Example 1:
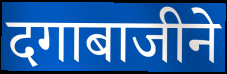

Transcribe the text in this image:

दगाबाजीने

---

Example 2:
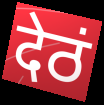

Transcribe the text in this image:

देठं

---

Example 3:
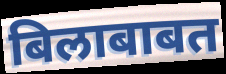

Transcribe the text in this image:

बिलाबाबत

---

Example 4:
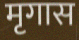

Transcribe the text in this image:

मृगास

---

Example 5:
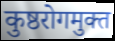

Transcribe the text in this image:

कुष्ठरोगमुक्त